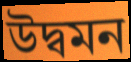
উদ্বমন